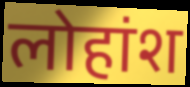
लोहांश